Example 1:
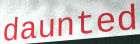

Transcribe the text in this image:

daunted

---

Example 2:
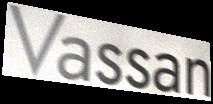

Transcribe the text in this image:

Vassan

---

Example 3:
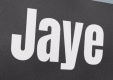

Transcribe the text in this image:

Jaye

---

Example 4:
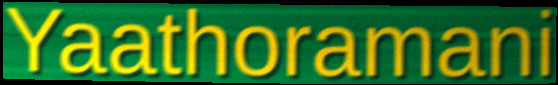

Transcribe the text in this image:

Yaathoramani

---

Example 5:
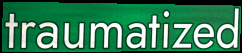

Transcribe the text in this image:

traumatized